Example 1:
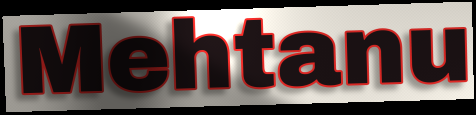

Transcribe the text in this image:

Mehtanu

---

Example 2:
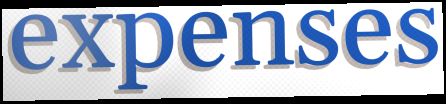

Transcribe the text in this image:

expenses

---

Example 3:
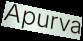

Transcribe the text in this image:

Apurva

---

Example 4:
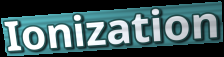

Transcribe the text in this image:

Ionization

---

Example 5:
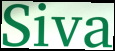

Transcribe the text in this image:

Siva